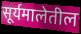
सूर्यमालेतील